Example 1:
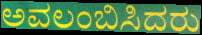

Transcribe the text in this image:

ಅವಲಂಬಿಸಿದರು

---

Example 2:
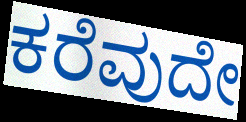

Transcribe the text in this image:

ಕರೆವುದೇ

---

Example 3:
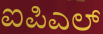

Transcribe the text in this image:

ಐಪಿಎಲ್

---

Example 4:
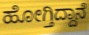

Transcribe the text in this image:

ಹೋಗ್ತಿದ್ದಾನೆ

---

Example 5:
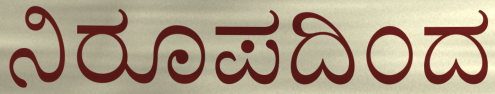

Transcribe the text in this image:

ನಿರೂಪದಿಂದ